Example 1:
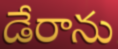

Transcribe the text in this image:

డేరాను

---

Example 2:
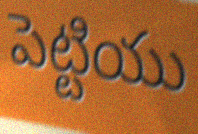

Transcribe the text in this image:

పెట్టియు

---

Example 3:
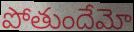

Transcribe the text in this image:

పోతుందేమో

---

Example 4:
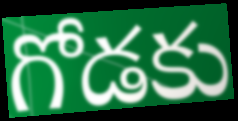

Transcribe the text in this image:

గోడకు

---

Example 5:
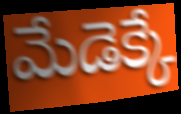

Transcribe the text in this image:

మేడెక్కే